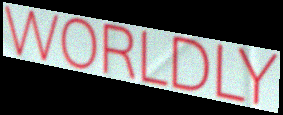
WORLDLY